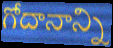
గోదానాన్ని